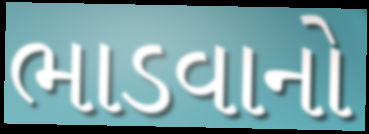
ભાડવાનો